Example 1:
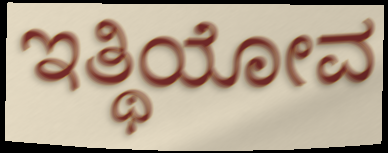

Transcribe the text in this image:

ಇತ್ಥಿಯೋವ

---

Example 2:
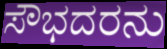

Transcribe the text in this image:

ಸೌಭದರನು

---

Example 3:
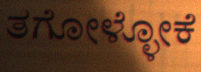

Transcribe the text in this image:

ತಗೋಳ್ಳೋಕೆ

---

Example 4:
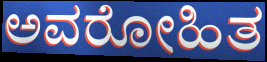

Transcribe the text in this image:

ಅವರೋಹಿತ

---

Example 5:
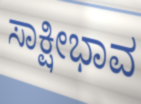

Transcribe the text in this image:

ಸಾಕ್ಷೀಭಾವ